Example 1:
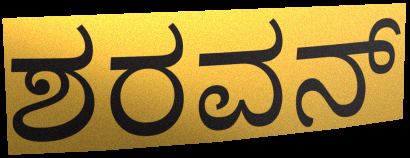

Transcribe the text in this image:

ಶರವನ್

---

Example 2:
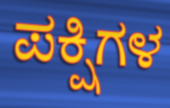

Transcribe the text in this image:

ಪಕ್ಷಿಗಳ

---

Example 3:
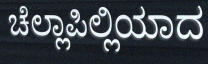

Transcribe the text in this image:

ಚೆಲ್ಲಾಪಿಲ್ಲಿಯಾದ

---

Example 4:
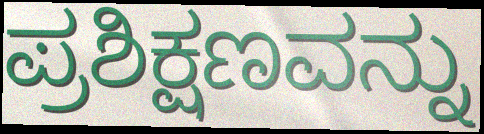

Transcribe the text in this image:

ಪ್ರಶಿಕ್ಷಣವನ್ನು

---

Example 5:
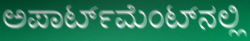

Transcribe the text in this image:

ಅಪಾರ್ಟ್‌ಮೆಂಟ್‌ನಲ್ಲಿ